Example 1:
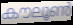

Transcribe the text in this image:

കൗലൂൺ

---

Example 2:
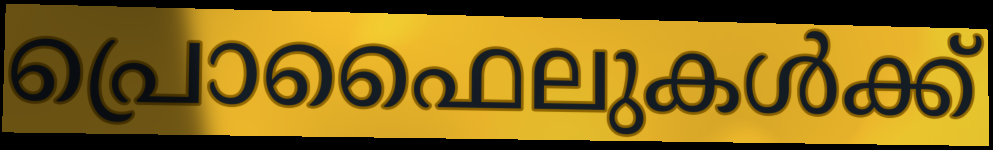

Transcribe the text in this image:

പ്രൊഫൈലുകൾക്ക്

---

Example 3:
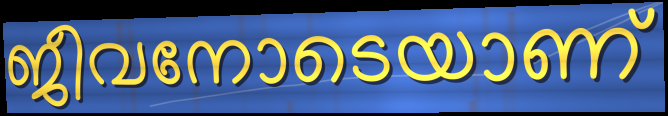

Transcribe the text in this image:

ജീവനോടെയാണ്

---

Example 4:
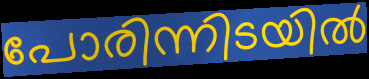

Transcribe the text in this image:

പോരിന്നിടയിൽ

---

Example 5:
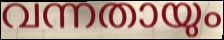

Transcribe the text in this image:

വന്നതായും